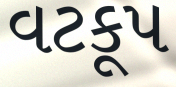
વટકૂપ